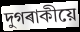
দুগৰাকীয়ে